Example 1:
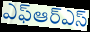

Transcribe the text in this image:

ఎఫ్ఆర్ఎస్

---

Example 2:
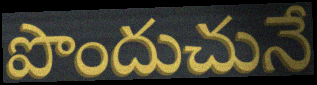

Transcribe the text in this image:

పొందుచునే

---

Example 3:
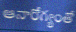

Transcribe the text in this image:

ఆనారోగ్యంతో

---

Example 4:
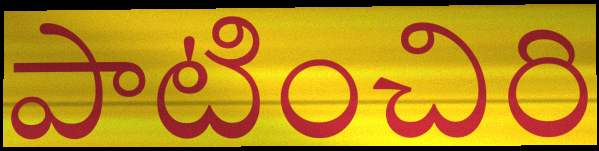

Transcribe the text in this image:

పాటించిరి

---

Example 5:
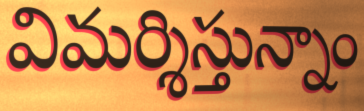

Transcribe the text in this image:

విమర్శిస్తున్నాం